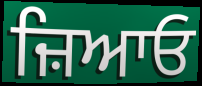
ਜ਼ਿਆਓ